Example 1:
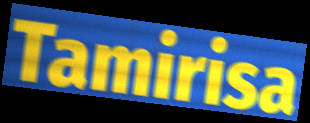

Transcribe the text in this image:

Tamirisa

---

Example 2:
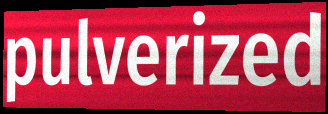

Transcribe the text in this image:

pulverized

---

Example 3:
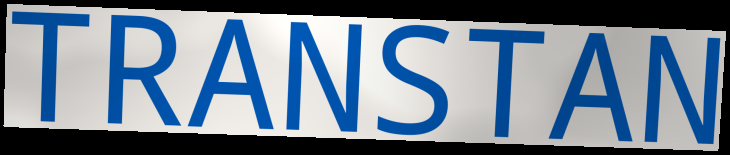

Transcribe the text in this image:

TRANSTAN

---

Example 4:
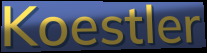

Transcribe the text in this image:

Koestler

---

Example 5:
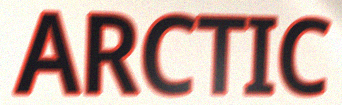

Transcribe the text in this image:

ARCTIC